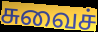
சுவைச்